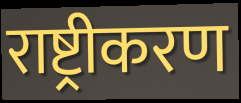
राष्ट्रीकरण